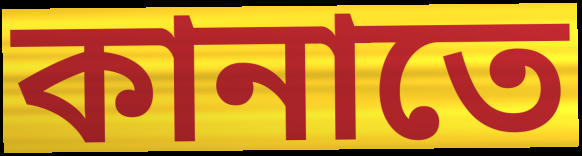
কানাতে